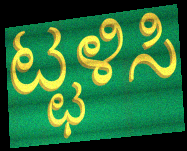
ಟ್ಟಳಿಸಿ